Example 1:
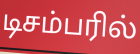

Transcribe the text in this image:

டிசம்பரில்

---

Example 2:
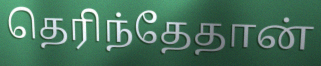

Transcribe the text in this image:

தெரிந்தேதான்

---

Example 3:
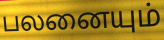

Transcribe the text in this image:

பலனையும்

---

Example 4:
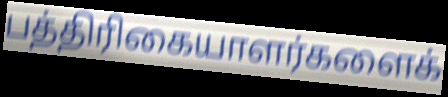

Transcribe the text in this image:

பத்திரிகையாளர்களைக்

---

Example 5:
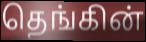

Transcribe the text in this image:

தெங்கின்